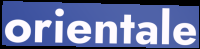
orientale